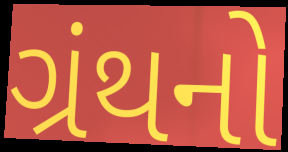
ગ્રંથનો